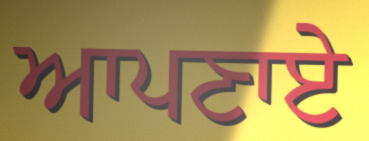
ਆਪਣਾਏ